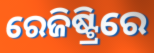
ରେଜିଷ୍ଟ୍ରିରେ